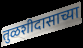
तुळशीदासाच्या